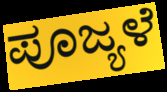
ಪೂಜ್ಯಳೆ